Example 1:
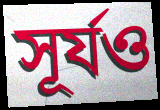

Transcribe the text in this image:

সূর্যও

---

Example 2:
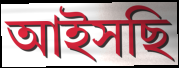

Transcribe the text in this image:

আইসছি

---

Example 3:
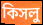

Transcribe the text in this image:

কিসলু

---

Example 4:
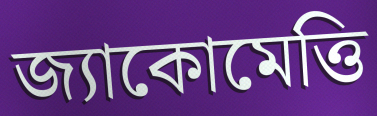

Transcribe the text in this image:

জ্যাকোমেত্তি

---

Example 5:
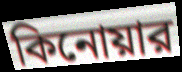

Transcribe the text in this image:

কিনোয়ার